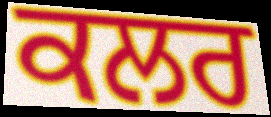
ਕਲਰ